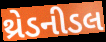
થ્રેડનીડલ